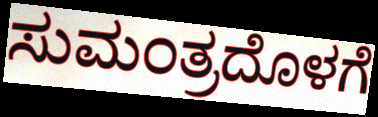
ಸುಮಂತ್ರದೊಳಗೆ